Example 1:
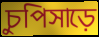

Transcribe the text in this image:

চুপিসাড়ে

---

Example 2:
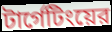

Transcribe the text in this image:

টার্গেটিংয়ের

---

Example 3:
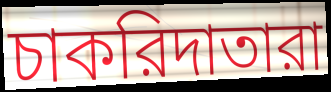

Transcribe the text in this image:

চাকরিদাতারা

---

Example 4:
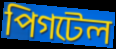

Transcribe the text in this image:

পিগটেল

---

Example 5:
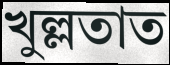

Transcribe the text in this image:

খুল্লতাত